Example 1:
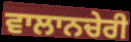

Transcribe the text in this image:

ਵਾਲਾਨਚੇਰੀ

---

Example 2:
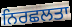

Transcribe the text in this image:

ਨਿਰਛਲਤਾ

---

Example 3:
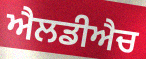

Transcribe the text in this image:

ਐਲਡੀਐਚ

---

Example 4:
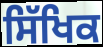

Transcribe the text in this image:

ਸਿੱਖਿਕ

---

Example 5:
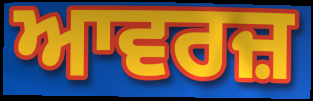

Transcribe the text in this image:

ਆਵਰਜ਼